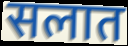
सलात